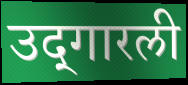
उद्‌गारली